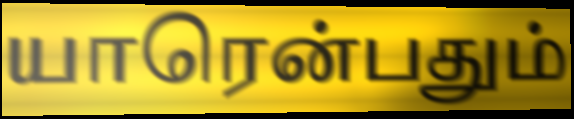
யாரென்பதும்